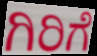
ಗಿರಿಗೆ